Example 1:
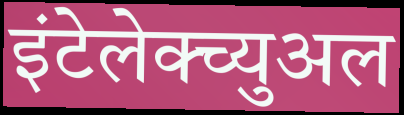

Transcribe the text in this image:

इंटेलेक्च्युअल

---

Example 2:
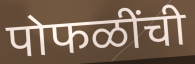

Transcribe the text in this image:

पोफळींची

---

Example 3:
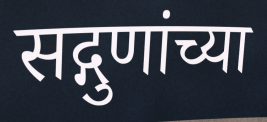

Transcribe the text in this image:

सद्गुणांच्या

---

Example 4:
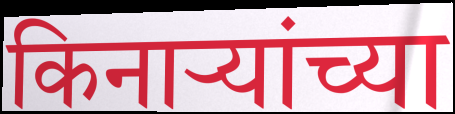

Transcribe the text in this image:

किनाऱ्यांच्या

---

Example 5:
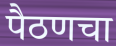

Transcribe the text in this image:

पैठणचा